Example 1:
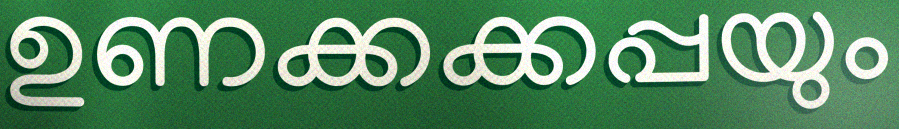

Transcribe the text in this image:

ഉണക്കക്കപ്പയും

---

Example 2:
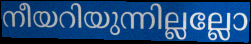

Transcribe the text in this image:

നീയറിയുന്നില്ലല്ലോ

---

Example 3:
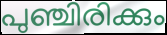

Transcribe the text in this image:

പുഞ്ചിരിക്കും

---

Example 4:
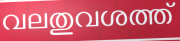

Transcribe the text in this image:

വലതുവശത്ത്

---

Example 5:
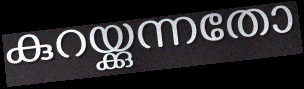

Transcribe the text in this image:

കുറയ്ക്കുന്നതോ